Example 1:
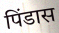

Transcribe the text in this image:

पिंडास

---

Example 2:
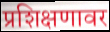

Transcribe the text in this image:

प्रशिक्षणावर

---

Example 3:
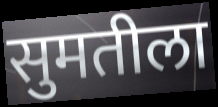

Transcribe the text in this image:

सुमतीला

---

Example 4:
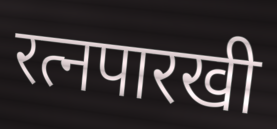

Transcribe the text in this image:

रत्नपारखी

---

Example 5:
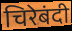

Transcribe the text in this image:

चिरेबंदी